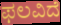
ಫಲವಿದೆ